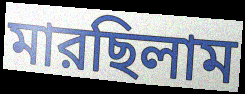
মারছিলাম